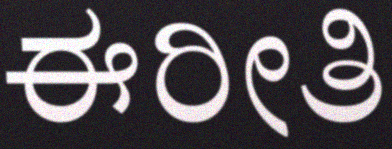
ಈರೀತಿ